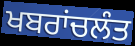
ਖਬਰਾਂਚਲੰਤ